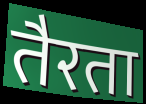
तैरता